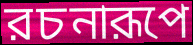
রচনারূপে